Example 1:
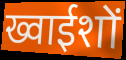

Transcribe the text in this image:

ख्वाईशों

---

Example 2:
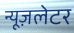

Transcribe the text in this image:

न्यूज़लेटर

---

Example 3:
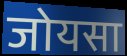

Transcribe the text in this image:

जोयसा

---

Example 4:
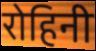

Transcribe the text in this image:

रोहिनी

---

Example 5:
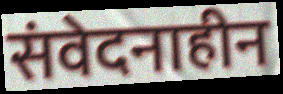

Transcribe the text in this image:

संवेदनाहीन